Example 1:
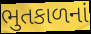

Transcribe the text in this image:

ભુતકાળનાં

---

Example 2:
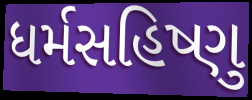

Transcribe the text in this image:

ધર્મસહિષ્ણુ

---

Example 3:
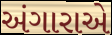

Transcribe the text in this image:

અંગારાએ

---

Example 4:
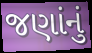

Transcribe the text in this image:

જણાંનું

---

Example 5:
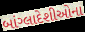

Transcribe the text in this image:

બાંગ્લાદેશીઓના